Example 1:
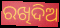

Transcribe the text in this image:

ରଖିଦିଅ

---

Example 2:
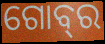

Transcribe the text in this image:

ଗୋବ୍‌ର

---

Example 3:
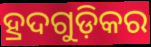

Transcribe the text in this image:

ହ୍ରଦଗୁଡ଼ିକର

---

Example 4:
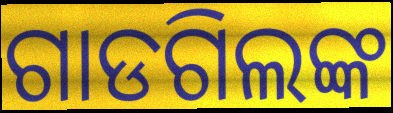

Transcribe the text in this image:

ଗାଡଗିଲଙ୍କ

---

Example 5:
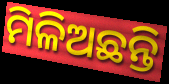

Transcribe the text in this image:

ମିଳିଅଛନ୍ତି